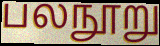
பலநூறு